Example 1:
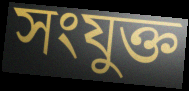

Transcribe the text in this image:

সংযুক্ত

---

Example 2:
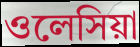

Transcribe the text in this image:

ওলেসিয়া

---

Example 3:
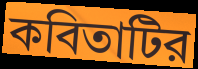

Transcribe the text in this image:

কবিতাটির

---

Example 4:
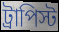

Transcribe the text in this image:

ট্রাপিস্ট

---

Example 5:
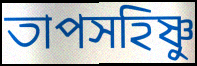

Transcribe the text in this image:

তাপসহিষ্ণু